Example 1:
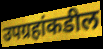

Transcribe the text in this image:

उपग्रहांकडील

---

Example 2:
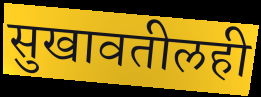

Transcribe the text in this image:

सुखावतीलही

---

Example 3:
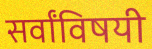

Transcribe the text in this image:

सर्वांविषयी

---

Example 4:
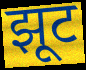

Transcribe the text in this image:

झूट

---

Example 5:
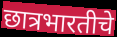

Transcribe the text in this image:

छात्रभारतीचे